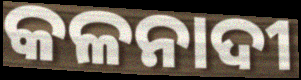
କଳନାଦୀ